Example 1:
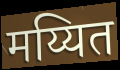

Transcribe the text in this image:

मय्यित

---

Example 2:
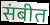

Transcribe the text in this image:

संबीत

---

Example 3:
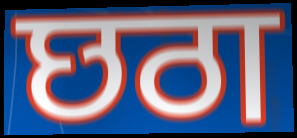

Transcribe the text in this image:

छठा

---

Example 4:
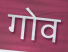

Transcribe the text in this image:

गोव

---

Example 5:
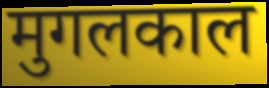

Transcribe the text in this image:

मुगलकाल